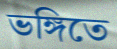
ভঙ্গিতে